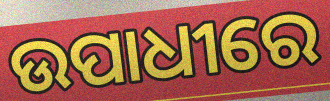
ଉପାଧୀରେ